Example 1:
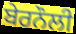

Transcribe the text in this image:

ਬੇਰਨੌਲੀ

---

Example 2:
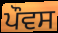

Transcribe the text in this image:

ਪੌਵਸ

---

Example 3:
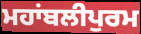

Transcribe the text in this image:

ਮਹਾਂਬਲੀਪੁਰਮ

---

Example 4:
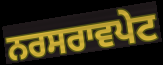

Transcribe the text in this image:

ਨਰਸਰਾਵਪੇਟ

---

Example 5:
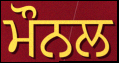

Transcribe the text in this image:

ਮੌਨਲ